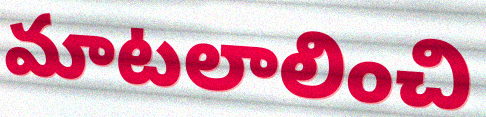
మాటలాలించి